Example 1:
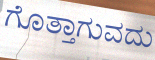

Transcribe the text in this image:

ಗೊತ್ತಾಗುವದು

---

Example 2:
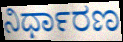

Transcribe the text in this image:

ನಿರ್ಧಾರಣ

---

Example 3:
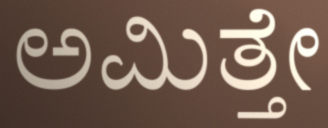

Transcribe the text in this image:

ಅಮಿತ್ತೇ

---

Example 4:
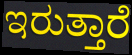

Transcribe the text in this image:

ಇರುತ್ತಾರೆ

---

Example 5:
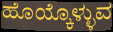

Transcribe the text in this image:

ಹೊಯ್ಕೊಳ್ಳುವ